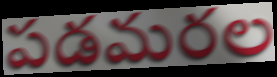
పడమరల